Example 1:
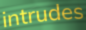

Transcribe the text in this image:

intrudes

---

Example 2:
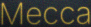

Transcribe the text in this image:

Mecca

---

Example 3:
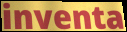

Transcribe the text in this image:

inventa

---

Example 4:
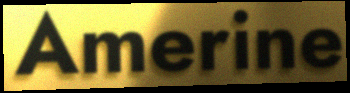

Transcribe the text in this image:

Amerine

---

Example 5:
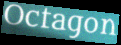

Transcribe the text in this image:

Octagon